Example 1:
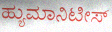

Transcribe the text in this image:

ಹ್ಯುಮಾನಿಟೀಸ್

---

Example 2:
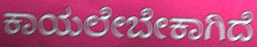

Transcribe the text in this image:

ಕಾಯಲೇಬೇಕಾಗಿದೆ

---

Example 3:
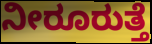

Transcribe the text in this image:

ನೀರೂರುತ್ತೆ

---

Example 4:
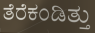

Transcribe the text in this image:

ತೆರೆಕಂಡಿತ್ತು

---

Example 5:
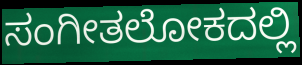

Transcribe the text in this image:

ಸಂಗೀತಲೋಕದಲ್ಲಿ